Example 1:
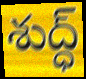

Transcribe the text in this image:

శుద్ధ్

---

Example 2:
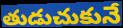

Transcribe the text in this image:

తుడుచుకునే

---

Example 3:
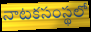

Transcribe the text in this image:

నాటకసంస్థలో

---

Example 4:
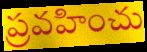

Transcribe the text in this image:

ప్రవహించు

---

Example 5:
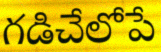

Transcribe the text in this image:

గడిచేలోపే